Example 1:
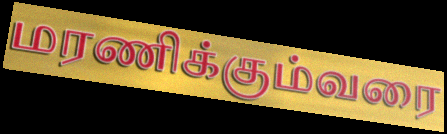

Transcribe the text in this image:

மரணிக்கும்வரை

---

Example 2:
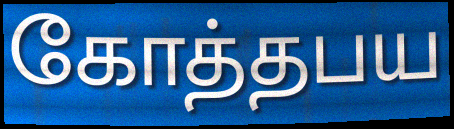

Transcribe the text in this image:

கோத்தபய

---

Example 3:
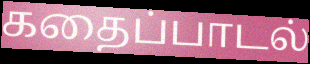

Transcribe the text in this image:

கதைப்பாடல்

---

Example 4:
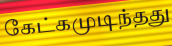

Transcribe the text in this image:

கேட்கமுடிந்தது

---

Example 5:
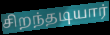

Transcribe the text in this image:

சிறந்தடியார்